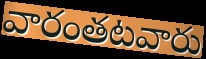
వారంతటవారు